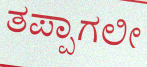
ತಪ್ಪಾಗಲೀ